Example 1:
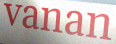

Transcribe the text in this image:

vanan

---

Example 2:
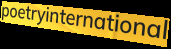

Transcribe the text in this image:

poetryinternational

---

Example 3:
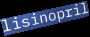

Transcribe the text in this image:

lisinopril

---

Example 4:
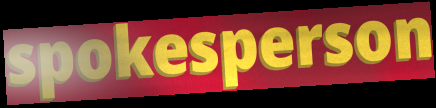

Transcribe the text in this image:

spokesperson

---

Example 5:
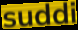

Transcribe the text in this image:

suddi